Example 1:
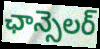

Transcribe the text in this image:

ఛాన్సెలర్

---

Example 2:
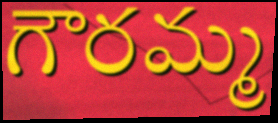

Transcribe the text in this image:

గౌరమ్మ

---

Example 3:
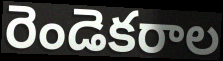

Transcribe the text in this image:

రెండెకరాల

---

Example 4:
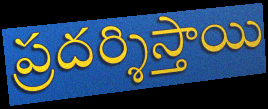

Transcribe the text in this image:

ప్రదర్శిస్తాయి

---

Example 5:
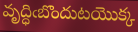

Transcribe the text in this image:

వృద్ధిఁబొందుటయొక్క